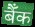
बैँक